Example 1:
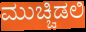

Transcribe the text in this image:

ಮುಚ್ಚಿಡಲಿ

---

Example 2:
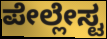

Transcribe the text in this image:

ಪೇಲ್ಲೇಸ್ಟ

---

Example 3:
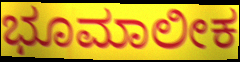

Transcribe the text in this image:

ಭೂಮಾಲೀಕ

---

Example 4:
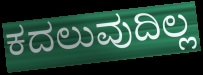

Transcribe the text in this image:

ಕದಲುವುದಿಲ್ಲ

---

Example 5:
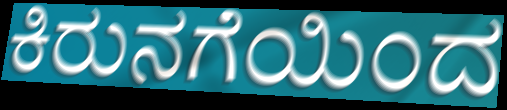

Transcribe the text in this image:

ಕಿರುನಗೆಯಿಂದ